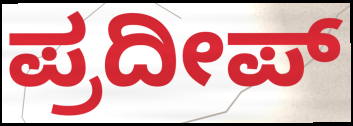
ಪ್ರದೀಪ್